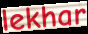
lekhar